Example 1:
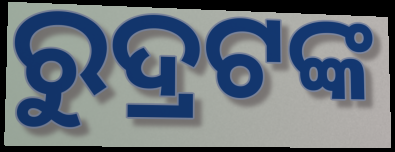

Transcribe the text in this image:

ରୁଦ୍ରଟଙ୍କ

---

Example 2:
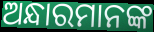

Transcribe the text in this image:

ଅନ୍ଧାରମାନଙ୍କ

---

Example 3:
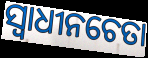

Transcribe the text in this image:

ସ୍ବାଧୀନଚେତା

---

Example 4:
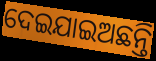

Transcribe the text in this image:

ଦେଇଯାଇଅଛନ୍ତି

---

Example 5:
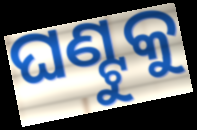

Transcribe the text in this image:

ଘଣ୍ଟୁକୁ